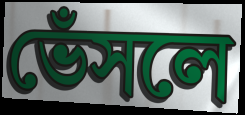
ভেঁসলে